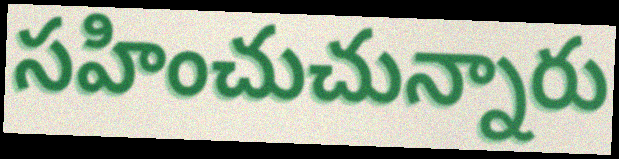
సహించుచున్నారు